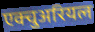
एक्चुअरियल